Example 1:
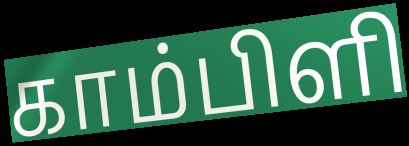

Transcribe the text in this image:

காம்பிளி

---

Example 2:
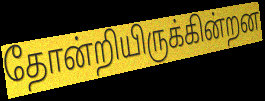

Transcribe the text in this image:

தோன்றியிருக்கின்றன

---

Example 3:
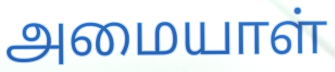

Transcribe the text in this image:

அமையாள்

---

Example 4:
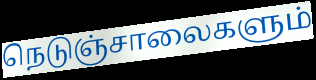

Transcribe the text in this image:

நெடுஞ்சாலைகளும்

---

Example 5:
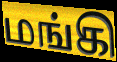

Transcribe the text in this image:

மங்கி